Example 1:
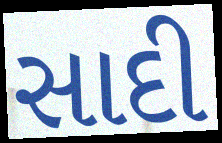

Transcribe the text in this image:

સાદી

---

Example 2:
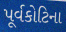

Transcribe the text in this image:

પૂર્વકોટિના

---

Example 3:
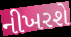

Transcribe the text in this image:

નીખરશે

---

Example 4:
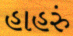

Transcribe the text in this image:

હાહરું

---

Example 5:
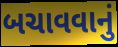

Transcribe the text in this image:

બચાવવાનું